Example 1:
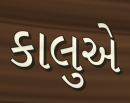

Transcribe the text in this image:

કાલુએ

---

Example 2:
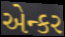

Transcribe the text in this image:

એન્કર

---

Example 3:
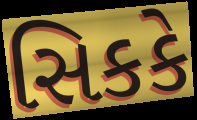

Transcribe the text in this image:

સિકકે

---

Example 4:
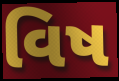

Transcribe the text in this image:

વિષ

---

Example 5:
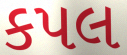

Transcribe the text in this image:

કપલ